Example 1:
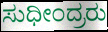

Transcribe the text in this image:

ಸುಧೀಂದ್ರರು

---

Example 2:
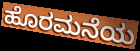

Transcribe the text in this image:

ಹೊರಮನೆಯ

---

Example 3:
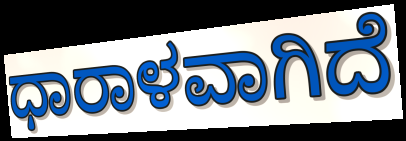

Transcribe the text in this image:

ಧಾರಾಳವಾಗಿದೆ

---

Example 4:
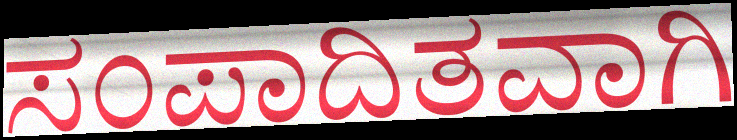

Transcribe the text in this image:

ಸಂಪಾದಿತವಾಗಿ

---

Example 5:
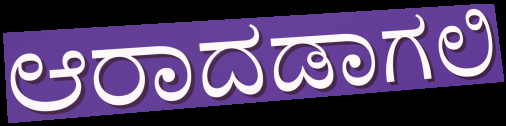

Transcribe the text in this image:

ಆರಾದಡಾಗಲಿ